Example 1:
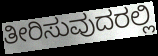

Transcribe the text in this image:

ತೀರಿಸುವುದರಲ್ಲಿ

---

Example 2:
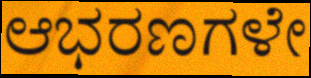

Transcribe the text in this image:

ಆಭರಣಗಳೇ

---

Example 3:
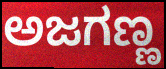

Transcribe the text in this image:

ಅಜಗಣ್ಣ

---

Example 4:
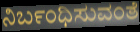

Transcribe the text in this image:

ನಿರ್ಬಂಧಿಸುವಂತೆ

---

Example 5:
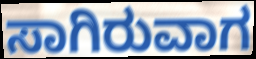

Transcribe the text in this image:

ಸಾಗಿರುವಾಗ